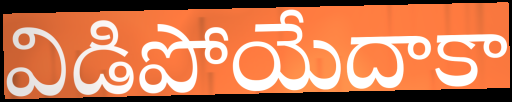
విడిపోయేదాకా